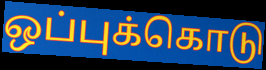
ஒப்புக்கொடு